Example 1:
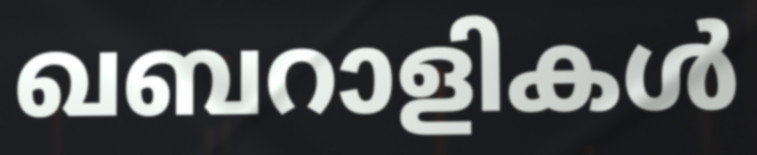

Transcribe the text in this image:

ഖബറാളികൾ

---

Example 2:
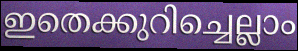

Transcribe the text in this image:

ഇതെക്കുറിച്ചെല്ലാം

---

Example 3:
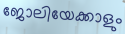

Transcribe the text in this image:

ജോലിയേക്കാളും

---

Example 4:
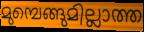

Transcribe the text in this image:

മുമ്പെങ്ങുമില്ലാത്ത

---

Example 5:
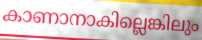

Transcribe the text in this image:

കാണാനാകില്ലെങ്കിലും